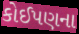
કોઈપણના